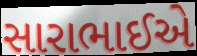
સારાભાઈએ